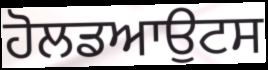
ਹੋਲਡਆਉਟਸ